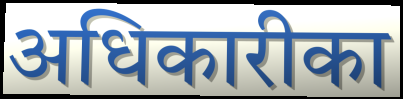
अधिकारीका